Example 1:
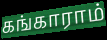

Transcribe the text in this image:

கங்காராம்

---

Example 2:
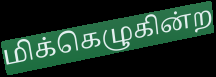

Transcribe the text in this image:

மிக்கெழுகின்ற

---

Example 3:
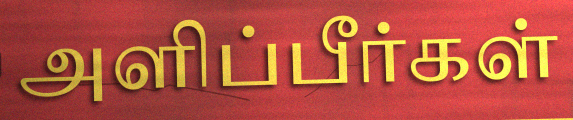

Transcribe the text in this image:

அளிப்பீர்கள்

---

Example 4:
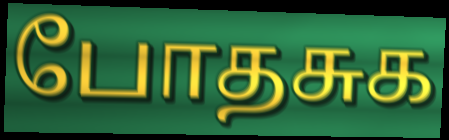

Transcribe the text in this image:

போதசுக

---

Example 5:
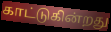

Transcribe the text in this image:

காட்டுகின்றது